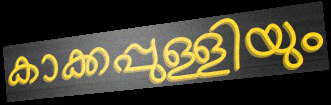
കാക്കപ്പുള്ളിയും